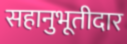
सहानुभूतीदार